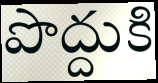
పొద్దుకి